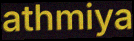
athmiya